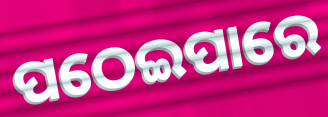
ପଠେଇପାରେ